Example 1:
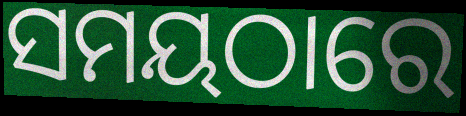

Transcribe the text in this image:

ସମୟଠାରେ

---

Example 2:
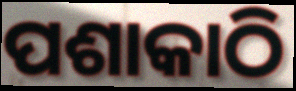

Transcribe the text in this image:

ପଶାକାଠି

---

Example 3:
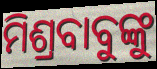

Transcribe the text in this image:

ମିଶ୍ରବାବୁଙ୍କୁ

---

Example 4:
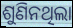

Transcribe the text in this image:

ଶୁଣିନଥିଲା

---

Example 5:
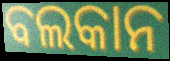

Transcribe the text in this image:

ବଲକାନ